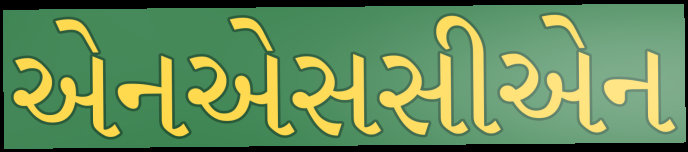
એનએસસીએન